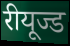
रीयूज्ड